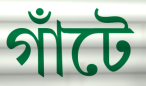
গাঁটে